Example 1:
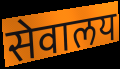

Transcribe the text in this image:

सेवालय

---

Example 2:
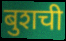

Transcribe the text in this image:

बुशची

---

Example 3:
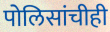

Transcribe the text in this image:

पोलिसांचीही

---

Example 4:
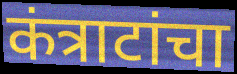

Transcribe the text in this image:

कंत्राटांचा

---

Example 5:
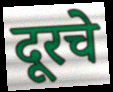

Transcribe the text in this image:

दूरचे